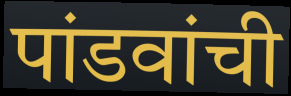
पांडवांची